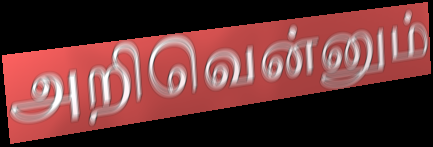
அறிவென்னும்